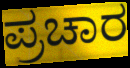
ಪ್ರಚಾರ